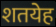
शतयेह